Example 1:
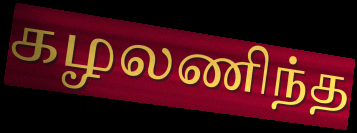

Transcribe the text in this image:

கழலணிந்த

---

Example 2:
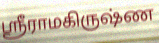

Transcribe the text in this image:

ஸ்ரீராமகிருஷ்ண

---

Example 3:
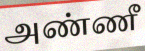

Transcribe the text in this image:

அண்ணீ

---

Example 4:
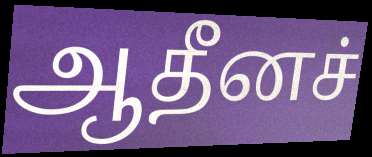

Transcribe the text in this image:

ஆதீனச்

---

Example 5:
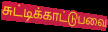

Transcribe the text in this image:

சுட்டிக்காட்டுபவை